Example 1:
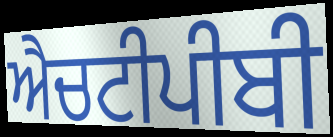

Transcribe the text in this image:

ਐਚਟੀਪੀਬੀ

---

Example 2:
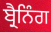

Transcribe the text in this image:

ਬ੍ਰੈਨਿੰਗ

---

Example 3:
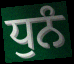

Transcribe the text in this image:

ਧੁਨੰ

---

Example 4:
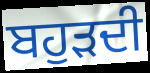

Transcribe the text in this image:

ਬਹੁੜਦੀ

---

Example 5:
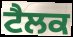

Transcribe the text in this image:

ਟੈਲਕ